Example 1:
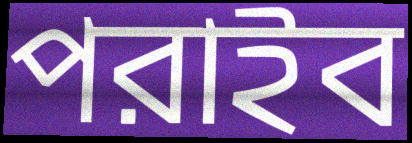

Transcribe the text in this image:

পরাইব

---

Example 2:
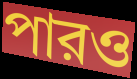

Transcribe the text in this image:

পারও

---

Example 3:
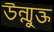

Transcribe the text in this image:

উন্মুক্ত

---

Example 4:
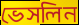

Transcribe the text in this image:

ভেসলিন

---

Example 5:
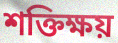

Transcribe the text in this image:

শক্তিক্ষয়